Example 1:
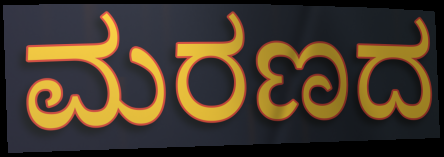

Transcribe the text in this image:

ಮರಣದ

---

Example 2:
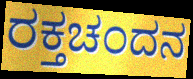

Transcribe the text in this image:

ರಕ್ತಚಂದನ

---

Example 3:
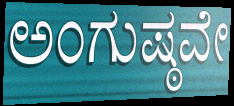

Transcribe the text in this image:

ಅಂಗುಷ್ಠವೇ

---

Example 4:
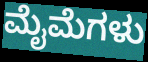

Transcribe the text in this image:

ಮೈಮೆಗಳು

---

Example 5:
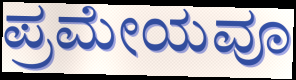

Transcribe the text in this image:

ಪ್ರಮೇಯವೂ